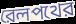
রেলপথের